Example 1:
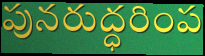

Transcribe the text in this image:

పునరుద్ధరింప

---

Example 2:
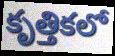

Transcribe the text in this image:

కృత్తికలో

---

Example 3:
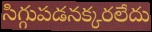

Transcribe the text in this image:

సిగ్గుపడనక్కరలేదు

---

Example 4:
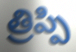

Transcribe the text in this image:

త్రిప్పి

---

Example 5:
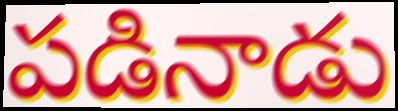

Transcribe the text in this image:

పడినాడు